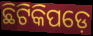
ଛିଟିକିପଡ଼େ